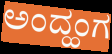
ಅಂದ್ಹಂಗ